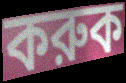
করুক